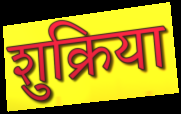
शुक्रिया